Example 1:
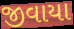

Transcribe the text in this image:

જીવાયા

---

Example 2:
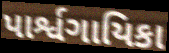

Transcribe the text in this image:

પાર્શ્વગાયિકા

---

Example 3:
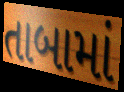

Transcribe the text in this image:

તાબામાં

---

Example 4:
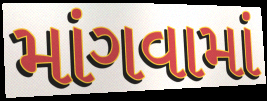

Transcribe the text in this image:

માંગવામાં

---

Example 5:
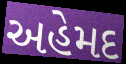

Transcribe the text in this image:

અહેમદ